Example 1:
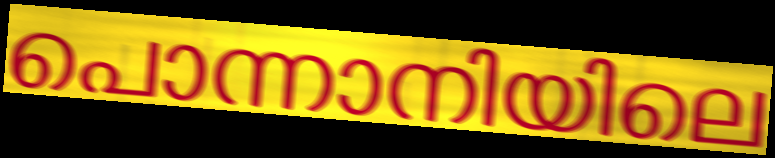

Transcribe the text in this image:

പൊന്നാനിയിലെ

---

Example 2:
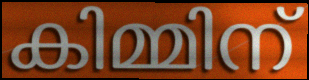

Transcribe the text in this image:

കിമ്മിന്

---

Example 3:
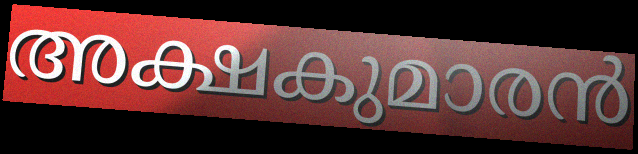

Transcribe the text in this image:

അക്ഷകുമാരൻ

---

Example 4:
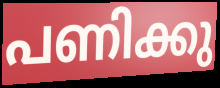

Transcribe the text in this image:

പണിക്കു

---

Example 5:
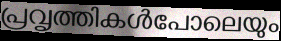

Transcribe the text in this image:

പ്രവൃത്തികൾപോലെയും